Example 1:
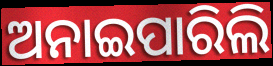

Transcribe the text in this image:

ଅନାଇପାରିଲି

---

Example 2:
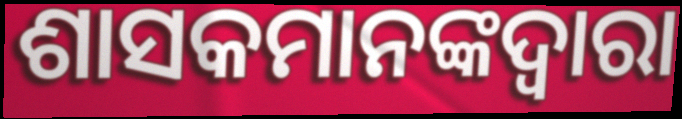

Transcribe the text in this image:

ଶାସକମାନଙ୍କଦ୍ୱାରା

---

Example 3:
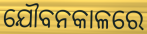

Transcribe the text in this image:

ଯୌବନକାଳରେ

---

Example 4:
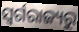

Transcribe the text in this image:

ସ୍ବର୍ଗରାଜ୍ୟରୁ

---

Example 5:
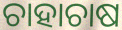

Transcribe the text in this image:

ଚାହାଚାଷ